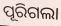
ପୂରିଗଲା